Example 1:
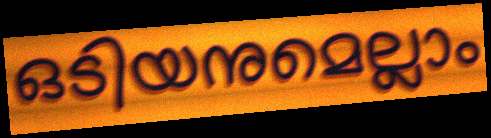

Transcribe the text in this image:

ഒടിയനുമെല്ലാം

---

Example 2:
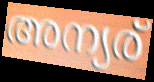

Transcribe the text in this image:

അന്യര്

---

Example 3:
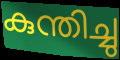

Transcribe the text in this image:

കുന്തിച്ചു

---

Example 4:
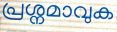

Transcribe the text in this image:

പ്രശ്നമാവുക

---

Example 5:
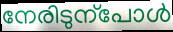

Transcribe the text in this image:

നേരിടുന്പോൾ